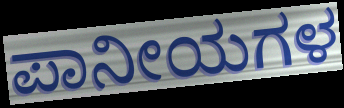
ಪಾನೀಯಗಳ